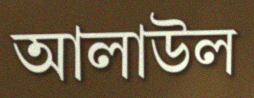
আলাউল